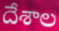
దేశాల